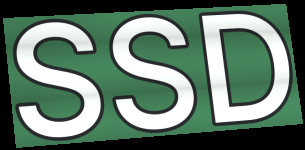
SSD